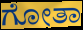
ಗೋತಾ